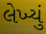
લેખ્યું